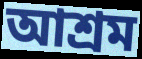
আশ্ৰম